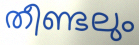
തീണ്ടലും